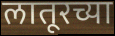
लातूरच्या